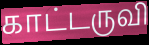
காட்டருவி